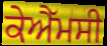
ਕੇਐੱਮਸੀ